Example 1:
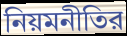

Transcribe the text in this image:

নিয়মনীতির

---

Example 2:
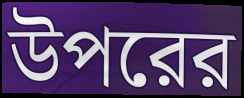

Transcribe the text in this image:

উপরের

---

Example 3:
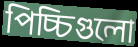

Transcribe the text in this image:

পিচ্চিগুলো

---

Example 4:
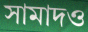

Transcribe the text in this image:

সামাদও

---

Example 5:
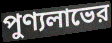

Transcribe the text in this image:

পুণ্যলাভের